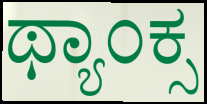
ಥ್ಯಾಂಕ್ಸ